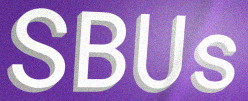
SBUs